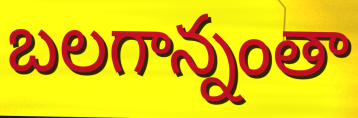
బలగాన్నంతా